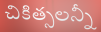
చికిత్సలన్నీ